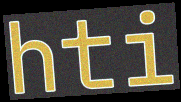
hti